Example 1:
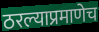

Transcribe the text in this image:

ठरल्याप्रमाणेच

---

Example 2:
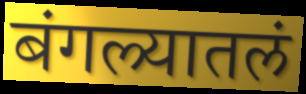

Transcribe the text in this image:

बंगल्यातलं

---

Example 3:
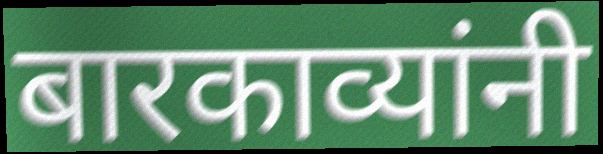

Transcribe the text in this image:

बारकाव्यांनी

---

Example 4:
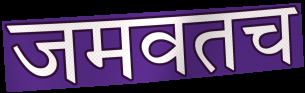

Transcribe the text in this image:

जमवतच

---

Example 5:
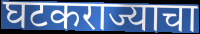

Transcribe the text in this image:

घटकराज्याचा